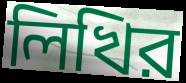
লিখির